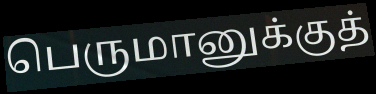
பெருமானுக்குத்